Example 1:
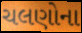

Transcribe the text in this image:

ચલણોના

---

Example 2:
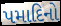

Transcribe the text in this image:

પમાદિનો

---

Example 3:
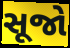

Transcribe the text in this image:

સૂજો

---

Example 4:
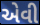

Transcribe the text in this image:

એવી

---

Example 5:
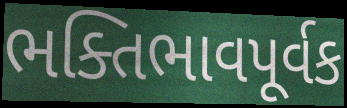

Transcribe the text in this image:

ભક્તિભાવપૂર્વક